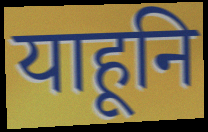
याहूनि